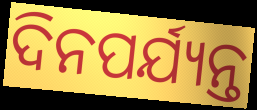
ଦିନପର୍ଯ୍ୟନ୍ତ